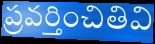
ప్రవర్తించితివి